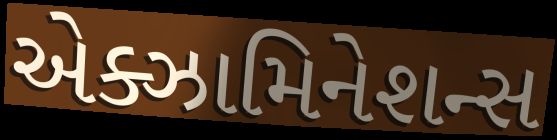
એક્ઝામિનેશન્સ